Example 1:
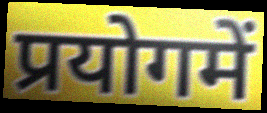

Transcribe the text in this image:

प्रयोगमें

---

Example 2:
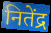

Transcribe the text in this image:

नितेंद्र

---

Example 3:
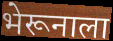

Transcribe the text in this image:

भेरूनाला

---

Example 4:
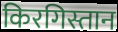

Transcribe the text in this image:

किरगिस्तान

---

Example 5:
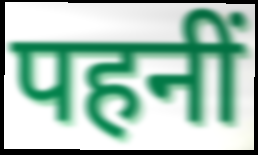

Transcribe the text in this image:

पहनीं